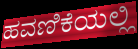
ಹವಣಿಕೆಯಲ್ಲಿ